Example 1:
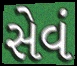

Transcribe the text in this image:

સેવં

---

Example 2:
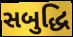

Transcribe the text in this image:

સબુદ્ધિ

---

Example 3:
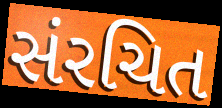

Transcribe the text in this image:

સંરચિત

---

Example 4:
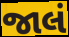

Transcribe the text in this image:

જાલં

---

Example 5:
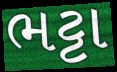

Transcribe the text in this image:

ભટ્ટા